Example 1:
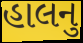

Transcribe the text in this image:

હાલનુ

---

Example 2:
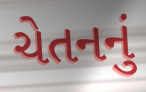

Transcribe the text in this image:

ચેતનનું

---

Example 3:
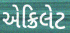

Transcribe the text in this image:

એક્રિલેટ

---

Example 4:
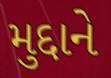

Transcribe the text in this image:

મુદ્દાને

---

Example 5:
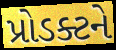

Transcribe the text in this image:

પ્રોડક્ટને